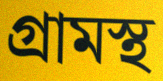
গ্রামস্থ